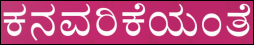
ಕನವರಿಕೆಯಂತೆ